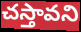
చస్తావని